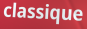
classique